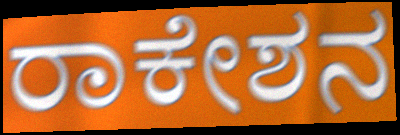
ರಾಕೇಶನ